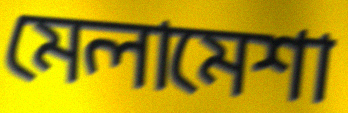
মেলামেশা